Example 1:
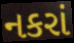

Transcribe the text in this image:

નકરાં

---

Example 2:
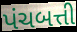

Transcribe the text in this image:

પંચબત્તી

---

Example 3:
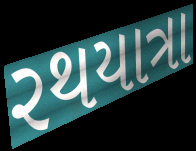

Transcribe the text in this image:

રથયાત્રા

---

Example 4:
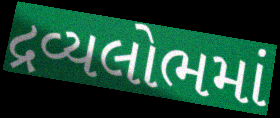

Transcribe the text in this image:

દ્રવ્યલોભમાં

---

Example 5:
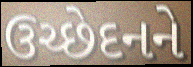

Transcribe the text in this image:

ઉચ્છેદનને